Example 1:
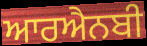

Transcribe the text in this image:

ਆਰਐਨਬੀ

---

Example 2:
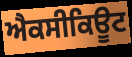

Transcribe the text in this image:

ਐਕਸੀਕਿਊਟ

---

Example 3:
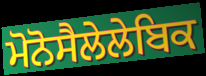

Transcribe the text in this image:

ਮੋਨੋਸੈਲੇਲੇਬਿਕ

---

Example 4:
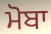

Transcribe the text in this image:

ਮੋਬਾ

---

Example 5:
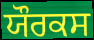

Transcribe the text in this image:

ਯੌਰਕਸ